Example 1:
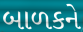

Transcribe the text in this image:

બાળકને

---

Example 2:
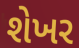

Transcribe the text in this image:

શેખર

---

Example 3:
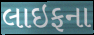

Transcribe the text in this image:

લાઇફના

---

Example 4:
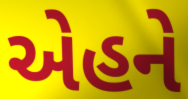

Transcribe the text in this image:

એહને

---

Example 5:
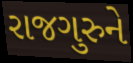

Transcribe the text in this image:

રાજગુરુને